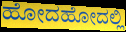
ಹೋದಹೋದಲ್ಲಿ